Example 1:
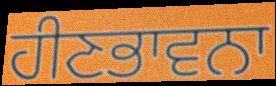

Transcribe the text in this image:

ਹੀਣਭਾਵਨਾ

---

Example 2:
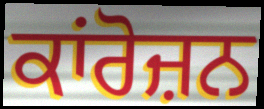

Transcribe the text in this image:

ਕਾਂਰੋਜ਼ਨ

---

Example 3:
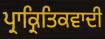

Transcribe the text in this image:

ਪ੍ਰਾਕ੍ਰਿਤਿਕਵਾਦੀ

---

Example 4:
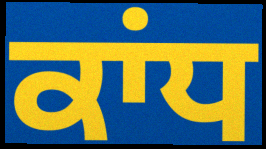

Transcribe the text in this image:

ਕਾਂਧ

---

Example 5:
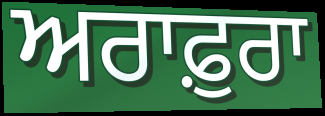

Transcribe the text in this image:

ਅਰਾਫ਼ੁਰਾ